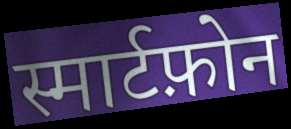
स्मार्टफ़ोन